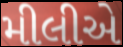
મીલીએ